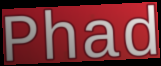
Phad